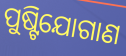
ପୁଷ୍ଟିଯୋଗାଣ